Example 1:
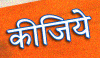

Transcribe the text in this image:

कीजिये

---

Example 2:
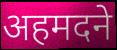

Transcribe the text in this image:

अहमदने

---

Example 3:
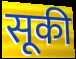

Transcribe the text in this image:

सूकी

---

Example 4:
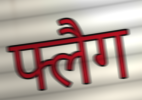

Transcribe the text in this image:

फ्लैग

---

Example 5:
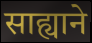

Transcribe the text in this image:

साह्याने